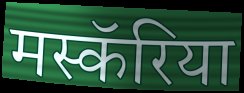
मस्कॅरिया